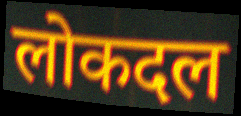
लोकदल